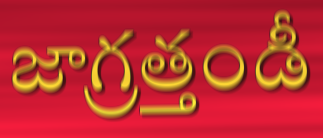
జాగ్రత్తండీ